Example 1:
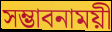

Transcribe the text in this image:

সম্ভাবনাময়ী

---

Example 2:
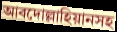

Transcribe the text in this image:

আবদোল্লাহিয়ানসহ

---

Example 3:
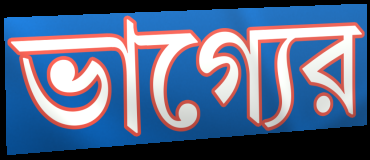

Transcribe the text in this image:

ভাগ্যের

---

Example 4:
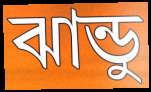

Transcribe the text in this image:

ঝান্ডু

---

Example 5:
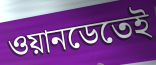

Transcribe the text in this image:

ওয়ানডেতেই